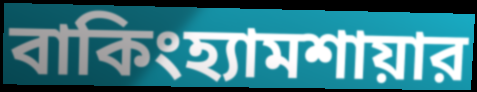
বাকিংহ্যামশায়ার